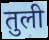
तुली